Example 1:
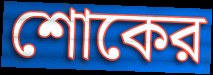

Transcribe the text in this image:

শোকের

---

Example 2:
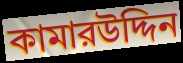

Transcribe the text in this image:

কামারউদ্দিন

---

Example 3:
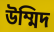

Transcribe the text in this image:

উম্মিদ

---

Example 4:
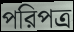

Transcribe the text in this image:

পরিপত্র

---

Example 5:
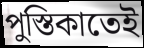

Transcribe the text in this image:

পুস্তিকাতেই